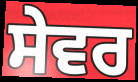
ਸੇਵਰ